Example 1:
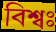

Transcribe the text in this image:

বিশ্বঃ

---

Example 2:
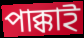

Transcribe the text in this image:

পাক্কাই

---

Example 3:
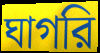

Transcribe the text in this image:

ঘাগরি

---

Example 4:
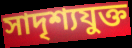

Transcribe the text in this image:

সাদৃশ্যযুক্ত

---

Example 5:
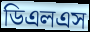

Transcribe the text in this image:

ডিএলএস